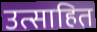
उत्साहित